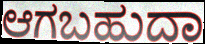
ಆಗಬಹುದಾ